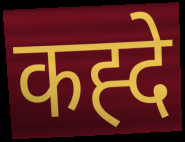
कह्दे